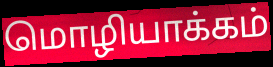
மொழியாக்கம்